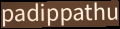
padippathu